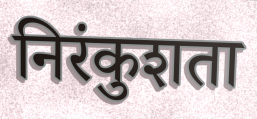
निरंकुशता